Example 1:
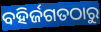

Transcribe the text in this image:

ବହିର୍ଜଗତଠାରୁ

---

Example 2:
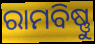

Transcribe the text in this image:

ରାମବିଷ୍ଣୁ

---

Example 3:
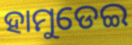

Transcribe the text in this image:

ହାମୁଡେଇ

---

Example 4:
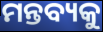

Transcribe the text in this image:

ମନ୍ତବ୍ୟକୁ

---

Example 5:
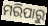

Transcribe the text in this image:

ମରିପାରୁ